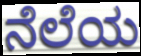
ನೆಲೆಯ